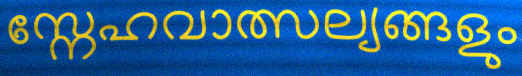
സ്നേഹവാത്സല്യങ്ങളും